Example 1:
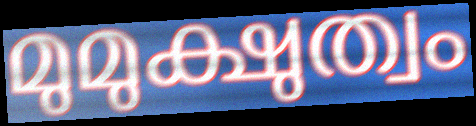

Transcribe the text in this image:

മുമുക്ഷുത്വം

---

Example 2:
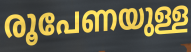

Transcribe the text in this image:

രൂപേണയുള്ള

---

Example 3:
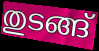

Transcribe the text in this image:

തുടങ്ങ്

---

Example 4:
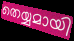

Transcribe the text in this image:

തെയ്യമായി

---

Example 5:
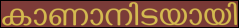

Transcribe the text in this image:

കാണാനിടയായി